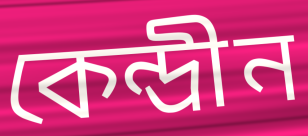
কেন্দ্রীন